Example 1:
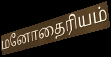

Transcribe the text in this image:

மனோதைரியம்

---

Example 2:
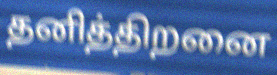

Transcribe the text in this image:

தனித்திறனை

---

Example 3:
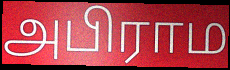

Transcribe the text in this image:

அபிராம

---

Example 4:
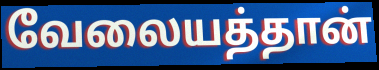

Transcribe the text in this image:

வேலையத்தான்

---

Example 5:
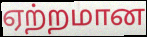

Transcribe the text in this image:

ஏற்றமான